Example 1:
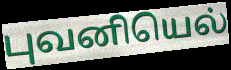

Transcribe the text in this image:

புவனியெல்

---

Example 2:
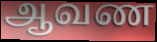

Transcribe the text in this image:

ஆவண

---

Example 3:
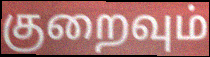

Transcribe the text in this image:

குறைவும்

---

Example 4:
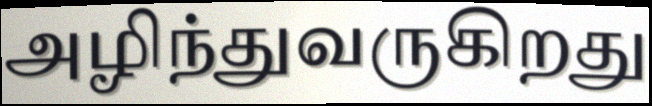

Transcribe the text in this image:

அழிந்துவருகிறது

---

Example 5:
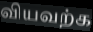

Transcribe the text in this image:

வியவற்க